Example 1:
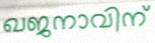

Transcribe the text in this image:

ഖജനാവിന്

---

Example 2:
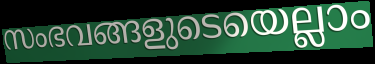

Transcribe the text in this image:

സംഭവങ്ങളുടെയെല്ലാം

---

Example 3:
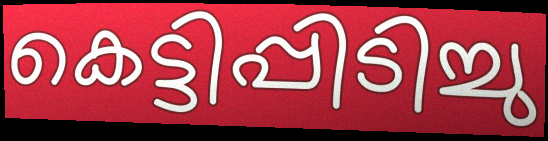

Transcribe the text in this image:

കെട്ടിപ്പിടിച്ചു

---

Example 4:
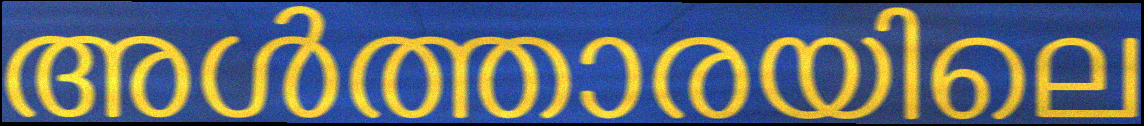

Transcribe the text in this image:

അൾത്താരയിലെ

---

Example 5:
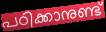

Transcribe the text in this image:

പഠിക്കാനുണ്ട്